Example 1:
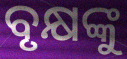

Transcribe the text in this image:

ବୃକ୍ଷଙ୍କୁ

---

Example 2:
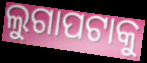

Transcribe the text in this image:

ଲୁଗାପଟାକୁ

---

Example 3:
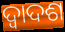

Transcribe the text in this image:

ଦ୍ଵାଦଶ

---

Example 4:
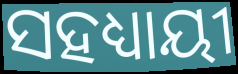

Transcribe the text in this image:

ସହଧ୍ୟାୟୀ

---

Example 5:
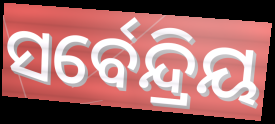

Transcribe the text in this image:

ସର୍ବେନ୍ଦ୍ରିୟ